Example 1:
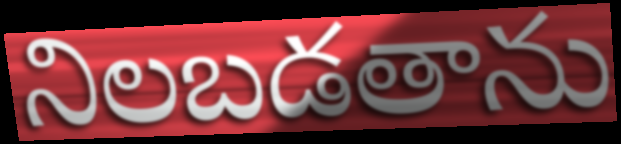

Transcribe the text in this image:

నిలబడతాను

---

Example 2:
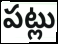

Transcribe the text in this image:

పట్లు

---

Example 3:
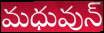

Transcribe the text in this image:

మధువున్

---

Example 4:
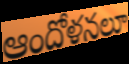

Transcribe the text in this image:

ఆందోళనలూ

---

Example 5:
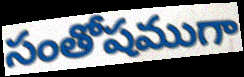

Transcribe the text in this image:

సంతోషముగా